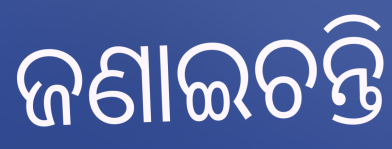
ଜଣାଇଚନ୍ତି